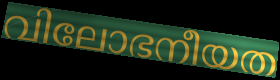
വിലോഭനീയത